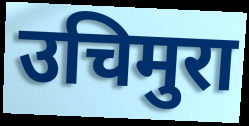
उचिमुरा